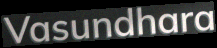
Vasundhara